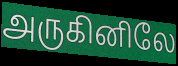
அருகினிலே